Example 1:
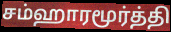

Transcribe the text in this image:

சம்ஹாரமூர்த்தி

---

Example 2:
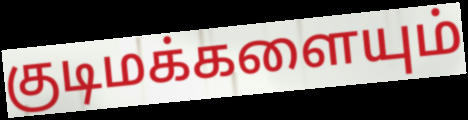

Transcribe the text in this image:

குடிமக்களையும்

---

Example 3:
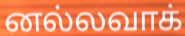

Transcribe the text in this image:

னல்லவாக்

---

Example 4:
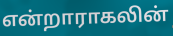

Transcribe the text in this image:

என்றாராகலின்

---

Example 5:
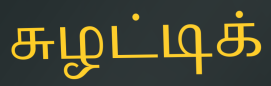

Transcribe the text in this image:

சுழட்டிக்